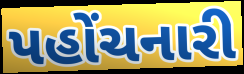
પહોંચનારી